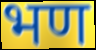
भण